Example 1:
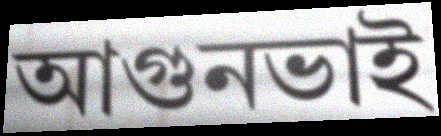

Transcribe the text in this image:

আগুনভাই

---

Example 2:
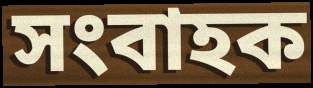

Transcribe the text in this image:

সংবাহক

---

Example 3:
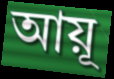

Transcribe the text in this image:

আয়ূ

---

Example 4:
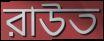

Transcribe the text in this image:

রাউত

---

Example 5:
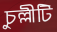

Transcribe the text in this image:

চুল্লীটি